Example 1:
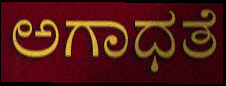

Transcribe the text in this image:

ಅಗಾಧತೆ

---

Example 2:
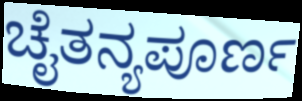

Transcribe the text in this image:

ಚೈತನ್ಯಪೂರ್ಣ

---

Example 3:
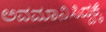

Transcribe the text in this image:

ಅವಮಾನಿಸಿದ್ದಕ್ಕೆ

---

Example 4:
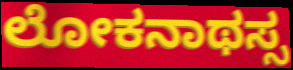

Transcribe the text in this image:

ಲೋಕನಾಥಸ್ಸ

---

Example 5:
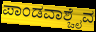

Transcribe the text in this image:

ಪಾಂಡವಾಶ್ಚೈವ